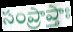
సంప్రాప్తాః